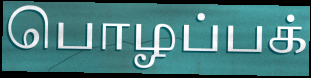
பொழப்பக்